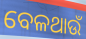
ବେଳଥାଉଁ